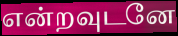
என்றவுடனே